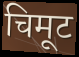
चिमूट